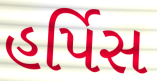
હર્પિસ